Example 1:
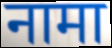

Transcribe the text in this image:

नामा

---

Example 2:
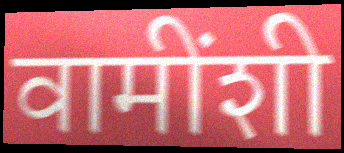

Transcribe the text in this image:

वामींशी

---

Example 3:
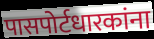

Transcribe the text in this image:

पासपोर्टधारकांना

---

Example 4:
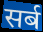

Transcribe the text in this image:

सर्ब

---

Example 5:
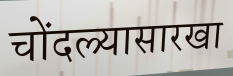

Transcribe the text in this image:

चोंदल्यासारखा